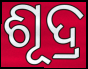
ଶୂଦ୍ର